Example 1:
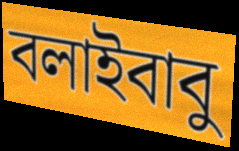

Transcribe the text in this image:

বলাইবাবু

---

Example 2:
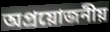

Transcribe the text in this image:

অপ্রয়োজনীয়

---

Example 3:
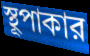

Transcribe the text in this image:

স্থূপাকার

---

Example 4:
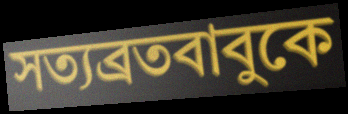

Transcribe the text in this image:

সত্যব্রতবাবুকে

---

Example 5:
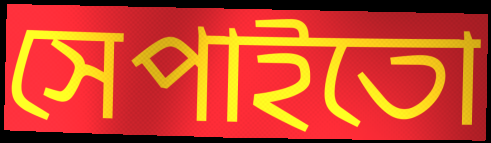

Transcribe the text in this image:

সেপাইতো